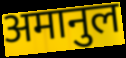
अमानुल